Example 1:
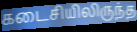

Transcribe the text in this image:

கடைசியிலிருந்த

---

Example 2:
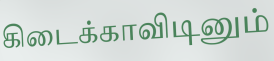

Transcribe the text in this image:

கிடைக்காவிடினும்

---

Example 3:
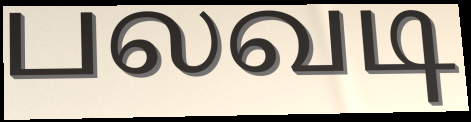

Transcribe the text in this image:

பலவடி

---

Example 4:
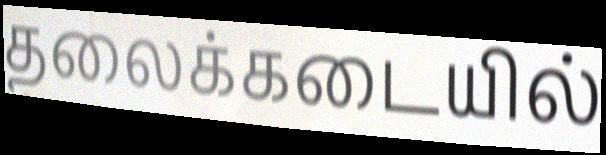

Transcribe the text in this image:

தலைக்கடையில்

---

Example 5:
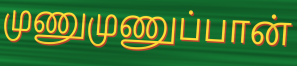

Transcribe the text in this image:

முணுமுணுப்பான்